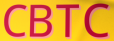
CBTC